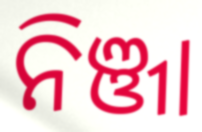
ନିଞ୍ଜା